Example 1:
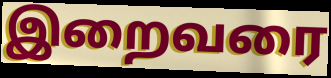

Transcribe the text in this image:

இறைவரை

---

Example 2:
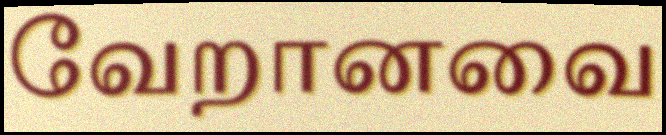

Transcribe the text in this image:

வேறானவை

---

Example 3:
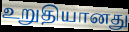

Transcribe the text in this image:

உறுதியானது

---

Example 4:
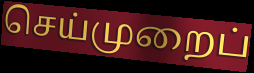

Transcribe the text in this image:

செய்முறைப்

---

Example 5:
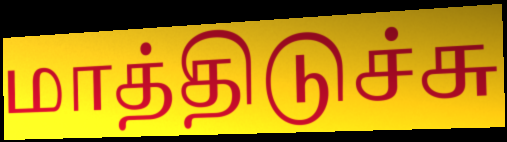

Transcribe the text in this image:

மாத்திடுச்சு